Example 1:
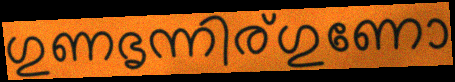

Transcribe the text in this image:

ഗുണഭൃന്നിര്ഗുണോ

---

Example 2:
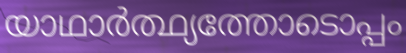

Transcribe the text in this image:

യാഥാർത്ഥ്യത്തോടൊപ്പം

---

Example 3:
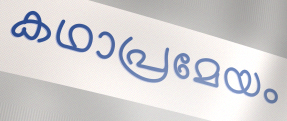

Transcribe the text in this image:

കഥാപ്രമേയം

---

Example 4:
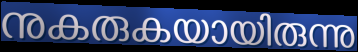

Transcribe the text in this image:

നുകരുകയായിരുന്നു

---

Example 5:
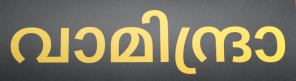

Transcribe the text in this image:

വാമിന്ദ്രാ